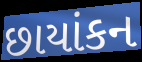
છાયાંકન